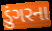
ડુંગરના